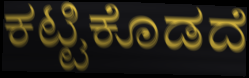
ಕಟ್ಟಿಕೊಡದೆ